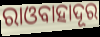
ରାଓବାହାଦୂର